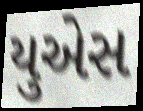
યુએસ